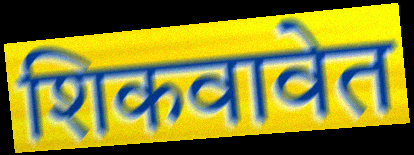
शिकवावेत